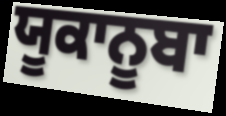
ਯੂਕਾਨੂਬਾ